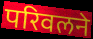
परिवलने